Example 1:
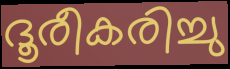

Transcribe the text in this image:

ദൂരീകരിച്ചു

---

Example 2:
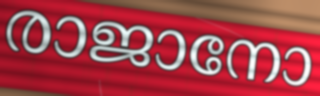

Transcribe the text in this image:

രാജാനോ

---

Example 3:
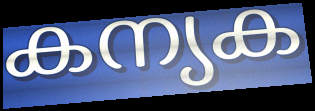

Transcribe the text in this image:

കന്യക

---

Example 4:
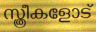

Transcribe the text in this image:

സ്ത്രീകളോട്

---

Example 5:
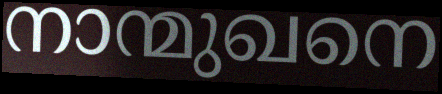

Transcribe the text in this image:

നാന്മുഖനെ